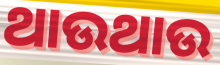
ଥାଉଥାଉ